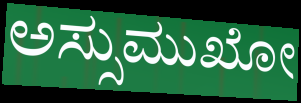
ಅಸ್ಸುಮುಖೋ